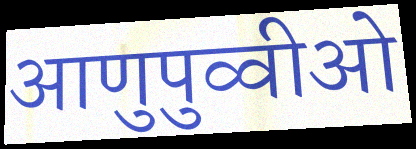
आणुपुव्वीओ